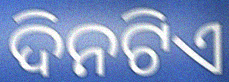
ଦିନଟିଏ